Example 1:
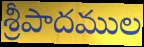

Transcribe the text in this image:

శ్రీపాదముల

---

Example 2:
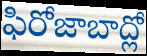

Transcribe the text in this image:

ఫిరోజాబాద్లో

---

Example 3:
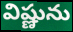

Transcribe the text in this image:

విష్ణును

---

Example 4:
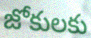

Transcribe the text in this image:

జోకులకు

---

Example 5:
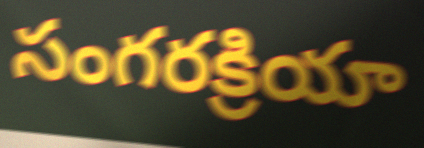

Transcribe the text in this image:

సంగరక్రియా